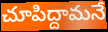
చూపిద్దామనే